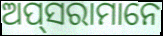
ଅପ୍‌ସରାମାନେ